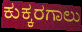
ಕುಕ್ಕರಗಾಲು